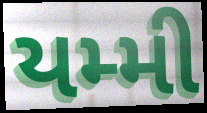
યમ્મી